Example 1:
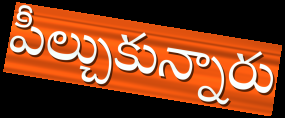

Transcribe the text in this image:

పీల్చుకున్నారు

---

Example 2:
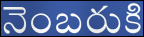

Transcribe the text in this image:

నెంబరుకి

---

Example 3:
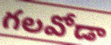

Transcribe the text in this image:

గలవోడా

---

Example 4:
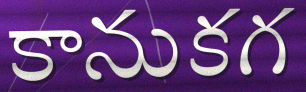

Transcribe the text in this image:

కానుకగ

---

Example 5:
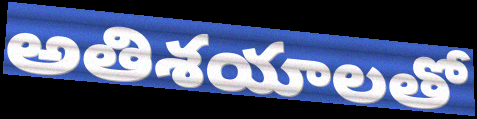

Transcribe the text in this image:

అతిశయాలతో